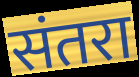
संतरा